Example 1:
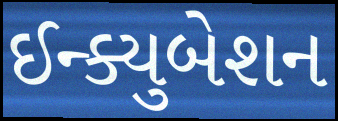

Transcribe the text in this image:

ઈન્ક્યુબેશન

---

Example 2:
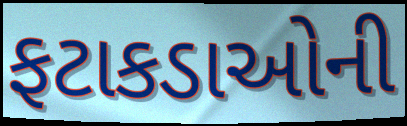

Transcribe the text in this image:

ફટાકડાઓની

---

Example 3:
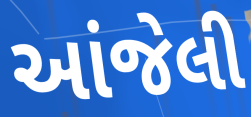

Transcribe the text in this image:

આંજેલી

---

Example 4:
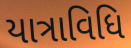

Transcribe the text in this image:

યાત્રાવિધિ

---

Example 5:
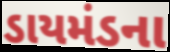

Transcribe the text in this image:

ડાયમંડના